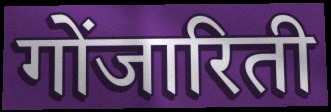
गोंजारिती